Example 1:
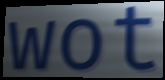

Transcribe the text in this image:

wot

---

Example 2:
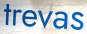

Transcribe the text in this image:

trevas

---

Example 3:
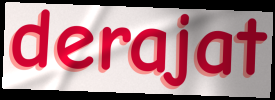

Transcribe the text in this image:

derajat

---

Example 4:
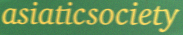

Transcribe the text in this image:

asiaticsociety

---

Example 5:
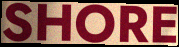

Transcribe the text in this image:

SHORE